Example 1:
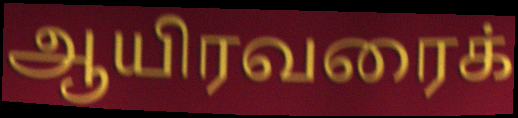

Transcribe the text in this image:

ஆயிரவரைக்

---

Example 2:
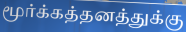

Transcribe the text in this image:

மூர்க்கத்தனத்துக்கு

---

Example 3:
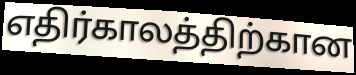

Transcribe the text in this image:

எதிர்காலத்திற்கான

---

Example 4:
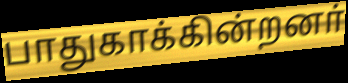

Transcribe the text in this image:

பாதுகாக்கின்றனர்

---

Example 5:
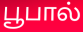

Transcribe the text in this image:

பூபால்